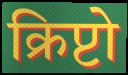
क्रिप्टो